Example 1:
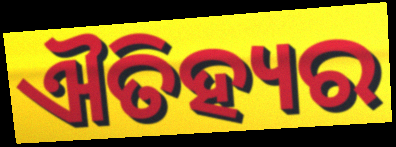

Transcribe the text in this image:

ଐତିହ୍ୟର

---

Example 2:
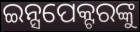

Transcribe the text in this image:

ଇନ୍ସପେକ୍ଟରଙ୍କୁ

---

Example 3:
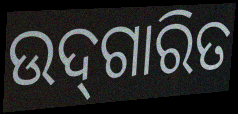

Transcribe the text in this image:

ଉଦ୍‌ଗାରିତ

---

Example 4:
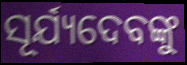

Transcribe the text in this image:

ସୂର୍ଯ୍ୟଦେବଙ୍କୁ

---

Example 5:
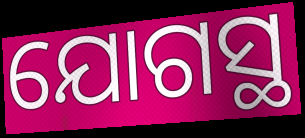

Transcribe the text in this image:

ଯୋଗସ୍ଥ